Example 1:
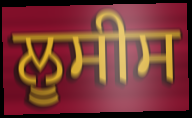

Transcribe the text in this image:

ਲੂਸੀਸ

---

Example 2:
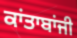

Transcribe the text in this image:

ਕਾਂਤਾਬਾਂਜੀ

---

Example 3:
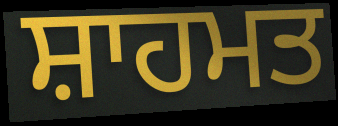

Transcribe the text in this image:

ਸ਼ਾਹਮਤ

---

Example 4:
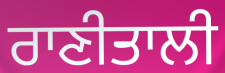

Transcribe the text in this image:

ਰਾਣੀਤਾਲੀ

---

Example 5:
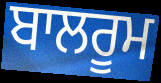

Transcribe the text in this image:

ਬਾਲਰੂਮ